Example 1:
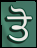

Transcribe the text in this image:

ਤੋ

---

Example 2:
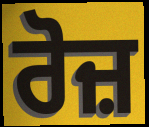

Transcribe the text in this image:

ਰੋਜ਼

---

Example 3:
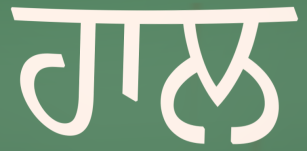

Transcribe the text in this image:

ਹਾਲ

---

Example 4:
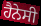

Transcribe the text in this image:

ਹੈਨੇਸੀ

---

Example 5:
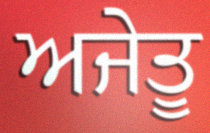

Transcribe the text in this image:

ਅਜੇਤੂ